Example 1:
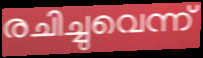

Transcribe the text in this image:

രചിച്ചുവെന്ന്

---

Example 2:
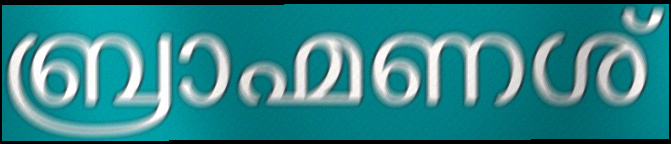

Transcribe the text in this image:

ബ്രാഹ്മണശ്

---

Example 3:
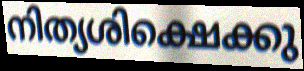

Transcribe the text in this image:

നിത്യശിക്ഷെക്കു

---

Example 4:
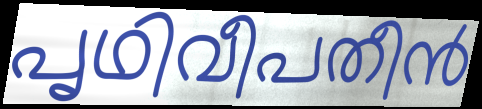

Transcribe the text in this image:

പൃഥിവീപതീൻ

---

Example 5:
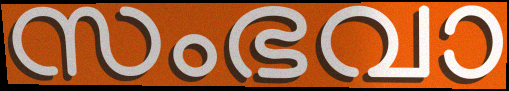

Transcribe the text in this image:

സംഭവാ